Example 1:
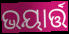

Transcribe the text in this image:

ଭୟାର୍ତ୍ତ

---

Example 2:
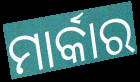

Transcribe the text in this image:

ମାର୍କାର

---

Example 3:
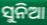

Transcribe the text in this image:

ସୁନିଆ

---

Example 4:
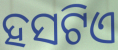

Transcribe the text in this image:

ହସଟିଏ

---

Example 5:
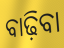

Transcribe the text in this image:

ବାଢ଼ିବା